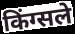
किंग्सले